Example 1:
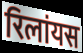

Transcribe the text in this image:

रिलांयस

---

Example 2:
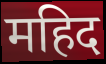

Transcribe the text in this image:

महिद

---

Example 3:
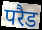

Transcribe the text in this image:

परैड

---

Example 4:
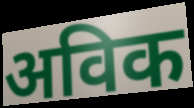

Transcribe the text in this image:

अविक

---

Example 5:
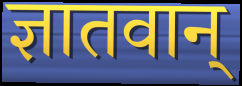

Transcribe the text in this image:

ज्ञातवान्